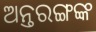
ଅନ୍ତରଙ୍ଗଙ୍କ